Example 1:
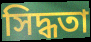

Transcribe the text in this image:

সিদ্ধতা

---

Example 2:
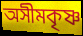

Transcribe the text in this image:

অসীমকৃষ্ণ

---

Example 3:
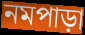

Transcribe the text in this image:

নমপাড়া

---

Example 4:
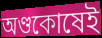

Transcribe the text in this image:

অণ্ডকোষেই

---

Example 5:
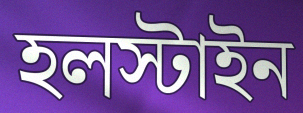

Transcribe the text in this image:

হলস্টাইন